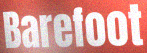
Barefoot